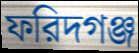
ফরিদগঞ্জ